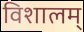
विशालम्